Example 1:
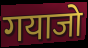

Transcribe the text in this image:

गयाजो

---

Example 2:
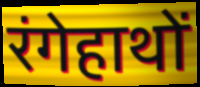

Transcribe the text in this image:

रंगेहाथों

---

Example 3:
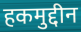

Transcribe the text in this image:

हकमुद्दीन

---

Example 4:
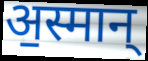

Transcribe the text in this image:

अ॒स्मान्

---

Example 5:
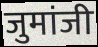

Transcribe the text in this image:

जुमांजी